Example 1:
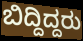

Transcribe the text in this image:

ಬಿದ್ದಿದ್ದರು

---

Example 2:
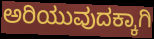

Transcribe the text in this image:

ಅರಿಯುವುದಕ್ಕಾಗಿ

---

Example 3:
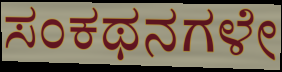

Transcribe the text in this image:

ಸಂಕಥನಗಳೇ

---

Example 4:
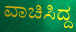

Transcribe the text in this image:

ವಾಚಿಸಿದ್ದ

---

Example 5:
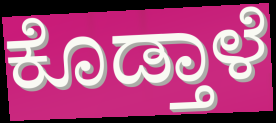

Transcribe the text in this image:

ಕೊಡ್ತಾಳೆ